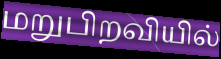
மறுபிறவியில்